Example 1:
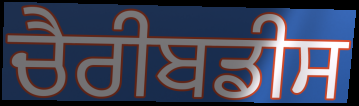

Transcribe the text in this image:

ਚੈਰੀਬਡੀਸ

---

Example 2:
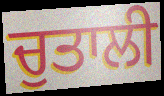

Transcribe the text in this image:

ਚੁਤਾਲੀ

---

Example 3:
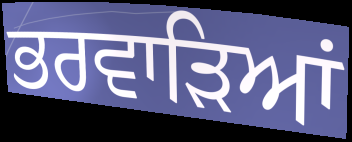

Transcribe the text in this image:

ਭਰਵਾੜਿਆਂ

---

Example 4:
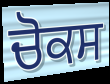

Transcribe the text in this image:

ਚੋਕਸ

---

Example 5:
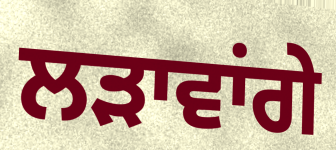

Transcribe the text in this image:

ਲੜਾਵਾਂਗੇ